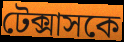
টেক্সাসকে